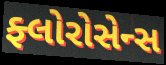
ફ્લોરોસેન્સ